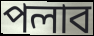
পলাব